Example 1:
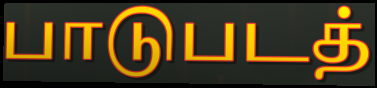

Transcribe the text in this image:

பாடுபடத்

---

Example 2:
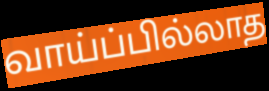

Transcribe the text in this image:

வாய்ப்பில்லாத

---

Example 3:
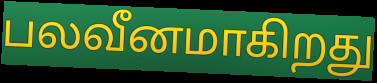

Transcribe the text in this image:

பலவீனமாகிறது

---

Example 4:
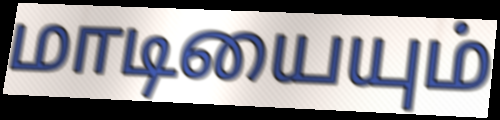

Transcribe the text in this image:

மாடியையும்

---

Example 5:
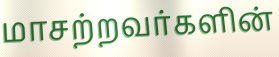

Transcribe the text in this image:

மாசற்றவர்களின்